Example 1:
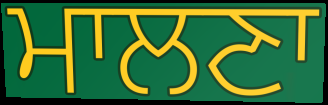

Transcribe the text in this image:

ਮਾਲਣਾ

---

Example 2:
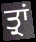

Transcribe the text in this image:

ਤ੍ਰਾਂ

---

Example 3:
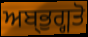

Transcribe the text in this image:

ਅਬ੍ਭੁਗ੍ਗਤੋ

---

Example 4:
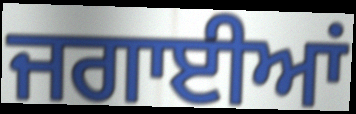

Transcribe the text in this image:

ਜਗਾਈਆਂ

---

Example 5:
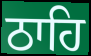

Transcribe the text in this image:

ਠਾਹਿ